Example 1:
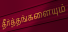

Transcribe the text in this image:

தீர்த்தங்களையும்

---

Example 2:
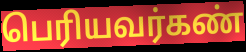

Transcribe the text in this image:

பெரியவர்கண்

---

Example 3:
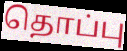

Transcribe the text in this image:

தொப்பு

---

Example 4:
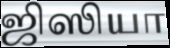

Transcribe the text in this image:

ஜிஸியா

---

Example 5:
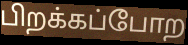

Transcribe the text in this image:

பிறக்கப்போற